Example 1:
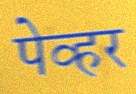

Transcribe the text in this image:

पेव्हर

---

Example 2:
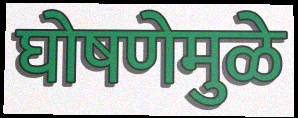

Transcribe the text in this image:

घोषणेमुळे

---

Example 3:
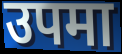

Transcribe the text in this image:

उपमा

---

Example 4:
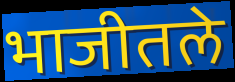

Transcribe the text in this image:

भाजीतले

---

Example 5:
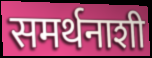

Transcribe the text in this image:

समर्थनाशी